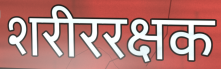
शरीररक्षक